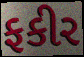
ફકીર